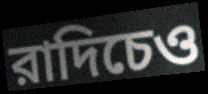
রাদিচেও